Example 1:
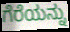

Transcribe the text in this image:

ಗೆರೆಯನ್ನು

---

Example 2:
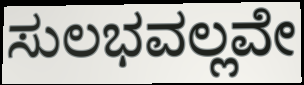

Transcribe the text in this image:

ಸುಲಭವಲ್ಲವೇ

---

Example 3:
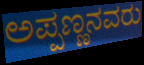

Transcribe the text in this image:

ಅಪ್ಪಣ್ಣನವರು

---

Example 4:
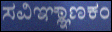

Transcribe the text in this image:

ಸವಿಞ್ಞಾಣಕಂ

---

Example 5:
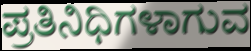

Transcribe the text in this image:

ಪ್ರತಿನಿಧಿಗಳಾಗುವ